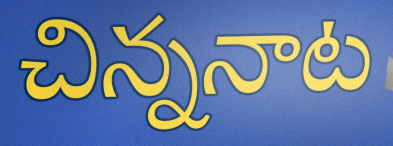
చిన్ననాట